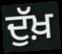
ਦੁੱਖ਼